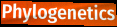
Phylogenetics